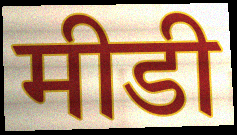
मीडी